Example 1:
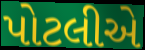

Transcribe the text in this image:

પોટલીએ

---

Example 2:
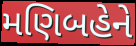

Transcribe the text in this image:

મણિબહેને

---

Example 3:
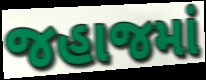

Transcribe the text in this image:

જહાજમાં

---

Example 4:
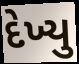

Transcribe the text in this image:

દેખ્યુ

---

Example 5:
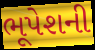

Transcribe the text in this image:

ભૂપેશની